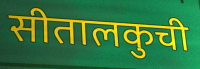
सीतालकुची